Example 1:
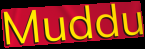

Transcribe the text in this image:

Muddu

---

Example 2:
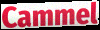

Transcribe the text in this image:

Cammel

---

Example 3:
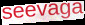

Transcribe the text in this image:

seevaga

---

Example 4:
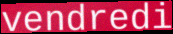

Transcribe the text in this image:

vendredi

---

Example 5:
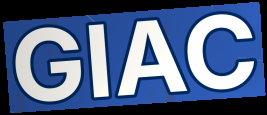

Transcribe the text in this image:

GIAC